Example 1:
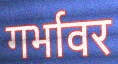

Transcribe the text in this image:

गर्भावर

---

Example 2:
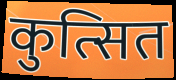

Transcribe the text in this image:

कुत्सित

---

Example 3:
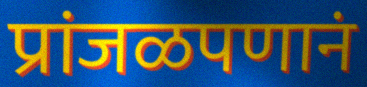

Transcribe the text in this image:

प्रांजळपणानं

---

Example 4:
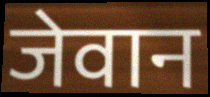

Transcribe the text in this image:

जेवान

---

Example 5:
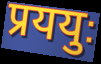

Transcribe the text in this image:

प्रययुः